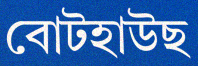
বোটহাউছ